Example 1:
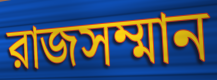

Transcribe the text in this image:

রাজসম্মান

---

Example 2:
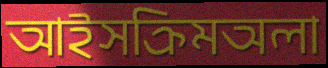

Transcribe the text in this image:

আইসক্রিমঅলা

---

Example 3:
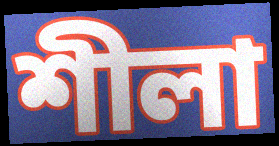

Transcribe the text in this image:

শীলা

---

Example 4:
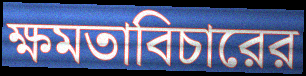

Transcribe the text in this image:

ক্ষমতাবিচারের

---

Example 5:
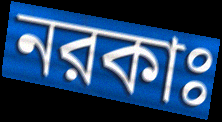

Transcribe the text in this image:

নরকাঃ